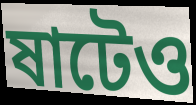
ষাটেও